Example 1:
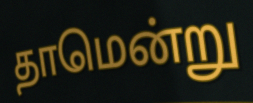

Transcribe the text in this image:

தாமென்று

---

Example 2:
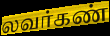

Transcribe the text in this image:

லவர்கண்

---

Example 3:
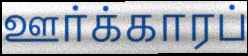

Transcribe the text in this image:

ஊர்க்காரப்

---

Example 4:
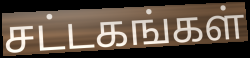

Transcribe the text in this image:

சட்டகங்கள்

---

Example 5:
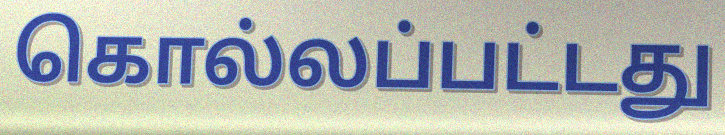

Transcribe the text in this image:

கொல்லப்பட்டது